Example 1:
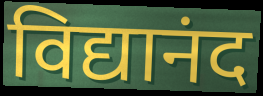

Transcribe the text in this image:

विद्यानंद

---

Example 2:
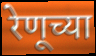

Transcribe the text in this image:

रेणूच्या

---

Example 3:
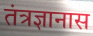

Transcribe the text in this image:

तंत्रज्ञानास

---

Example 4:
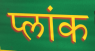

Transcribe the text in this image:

प्लांक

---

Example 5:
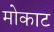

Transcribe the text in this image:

मोकाट